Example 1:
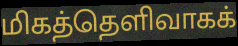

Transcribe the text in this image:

மிகத்தெளிவாகக்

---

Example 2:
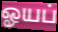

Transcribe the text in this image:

ஓயப்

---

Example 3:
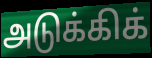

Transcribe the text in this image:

அடுக்கிக்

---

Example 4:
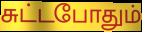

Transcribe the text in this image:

சுட்டபோதும்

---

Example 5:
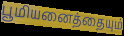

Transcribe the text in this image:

பூமியனைத்தையும்